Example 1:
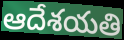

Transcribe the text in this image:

ఆదేశయతి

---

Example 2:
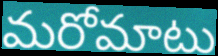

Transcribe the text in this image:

మరోమాటు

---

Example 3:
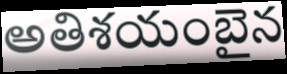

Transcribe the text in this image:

అతిశయంబైన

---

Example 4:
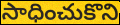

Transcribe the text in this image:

సాధించుకొని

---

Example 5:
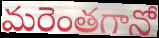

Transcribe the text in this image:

మరెంతగానో